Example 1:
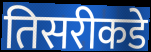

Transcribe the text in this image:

तिसरीकडे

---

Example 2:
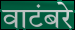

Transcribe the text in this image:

वाटंबरे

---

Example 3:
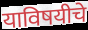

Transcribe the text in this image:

याविषयीचे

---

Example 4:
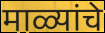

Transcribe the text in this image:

माळ्यांचे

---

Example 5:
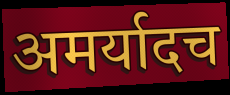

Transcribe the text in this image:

अमर्यादच